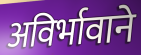
अविर्भावाने